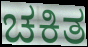
ಚಕಿತ